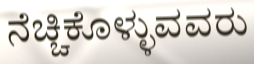
ನೆಚ್ಚಿಕೊಳ್ಳುವವರು